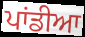
ਪਾਂਡੀਆ